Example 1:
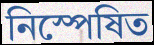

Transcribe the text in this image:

নিস্পেষিত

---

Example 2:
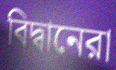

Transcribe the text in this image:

বিদ্বানেরা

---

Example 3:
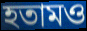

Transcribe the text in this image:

হতামও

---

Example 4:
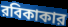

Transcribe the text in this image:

রবিকাকার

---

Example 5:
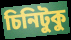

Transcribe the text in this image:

চিনিটুকু